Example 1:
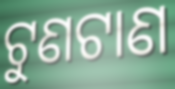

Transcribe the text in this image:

ଟୁଣଟାଣ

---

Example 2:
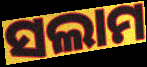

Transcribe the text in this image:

ସଲାମ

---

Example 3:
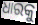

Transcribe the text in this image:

ଧାରକୁ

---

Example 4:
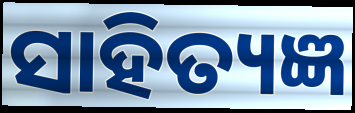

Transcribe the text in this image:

ସାହିତ୍ୟଜ୍ଞ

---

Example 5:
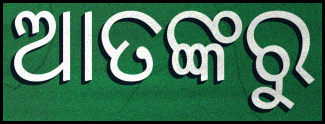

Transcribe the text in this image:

ଆତଙ୍କରୁ